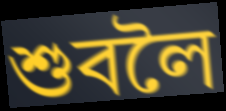
শুবলৈ